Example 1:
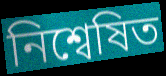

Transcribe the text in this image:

নিশ্বেষিত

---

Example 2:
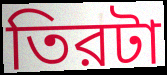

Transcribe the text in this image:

তিরটা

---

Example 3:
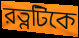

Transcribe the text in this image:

রত্নটিকে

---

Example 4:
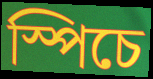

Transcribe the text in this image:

স্পিচে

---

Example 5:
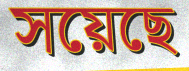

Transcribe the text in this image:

সয়েছে